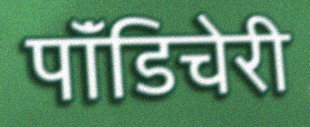
पॉंडिचेरी